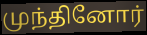
முந்தினோர்